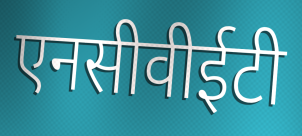
एनसीवीईटी